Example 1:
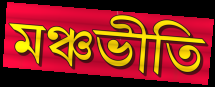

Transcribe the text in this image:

মঞ্চভীতি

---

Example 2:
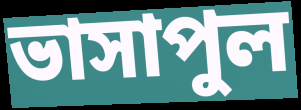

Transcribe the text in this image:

ভাসাপুল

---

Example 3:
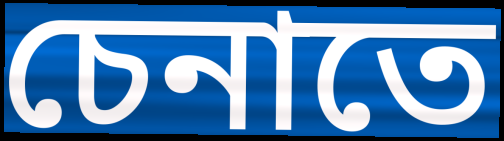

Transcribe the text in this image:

চেনাতে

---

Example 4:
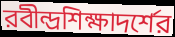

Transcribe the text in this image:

রবীন্দ্রশিক্ষাদর্শের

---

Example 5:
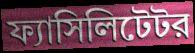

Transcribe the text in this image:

ফ্যাসিলিটেটর